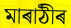
মাৰাঠীৰ